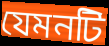
যেমনটি